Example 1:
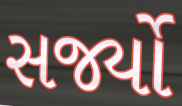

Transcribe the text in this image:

સર્જ્યો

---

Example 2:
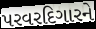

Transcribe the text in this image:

પરવરદિગારને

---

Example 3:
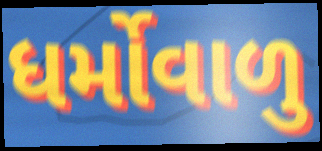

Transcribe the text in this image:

ધર્મોવાળુ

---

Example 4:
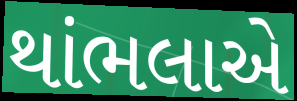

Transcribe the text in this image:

થાંભલાએ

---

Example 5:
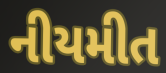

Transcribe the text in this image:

નીયમીત